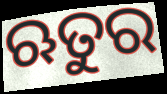
ଋତୁର